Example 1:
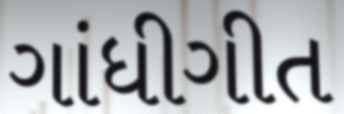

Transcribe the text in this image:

ગાંધીગીત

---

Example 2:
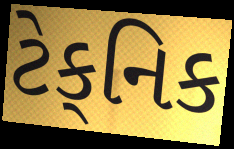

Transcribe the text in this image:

ટેક્‌નિક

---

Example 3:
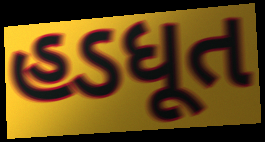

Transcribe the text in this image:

હડધૂત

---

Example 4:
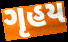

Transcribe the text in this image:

ગૃહય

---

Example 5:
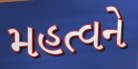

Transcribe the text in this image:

મહત્વને